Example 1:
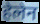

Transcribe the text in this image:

हेलेन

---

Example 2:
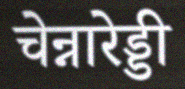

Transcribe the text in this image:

चेन्नारेड्डी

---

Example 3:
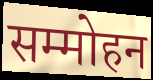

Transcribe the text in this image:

सम्मोहन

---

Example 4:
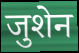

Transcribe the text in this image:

जुशेन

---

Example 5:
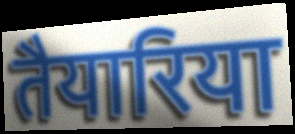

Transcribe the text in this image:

तैयारिया